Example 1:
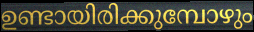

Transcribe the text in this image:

ഉണ്ടായിരിക്കുമ്പോഴും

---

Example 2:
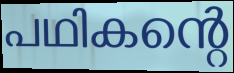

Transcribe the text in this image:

പഥികന്റെ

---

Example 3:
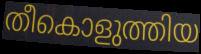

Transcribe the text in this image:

തീകൊളുത്തിയ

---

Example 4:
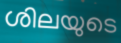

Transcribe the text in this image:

ശിലയുടെ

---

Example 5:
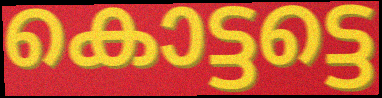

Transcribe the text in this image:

കൊട്ടട്ടെ